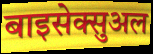
बाइसेक्सुअल